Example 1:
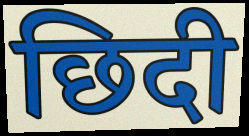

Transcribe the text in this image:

छिदी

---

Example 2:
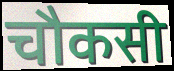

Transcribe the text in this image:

चौकसी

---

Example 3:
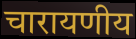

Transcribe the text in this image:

चारायणीय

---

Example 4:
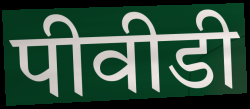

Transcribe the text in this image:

पीवीडी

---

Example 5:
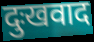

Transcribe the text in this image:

दुःखवाद